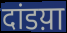
दांडय़ा